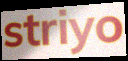
striyo